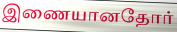
இணையானதோர்